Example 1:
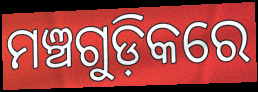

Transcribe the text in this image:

ମଞ୍ଚଗୁଡ଼ିକରେ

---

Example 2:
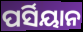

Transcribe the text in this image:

ପର୍ସିୟାନ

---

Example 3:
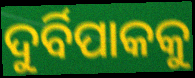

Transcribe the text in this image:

ଦୁର୍ବିପାକକୁ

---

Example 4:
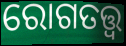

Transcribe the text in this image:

ରୋଗତତ୍ତ୍ୱ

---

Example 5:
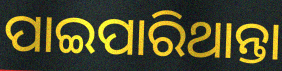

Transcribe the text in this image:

ପାଇପାରିଥାନ୍ତା